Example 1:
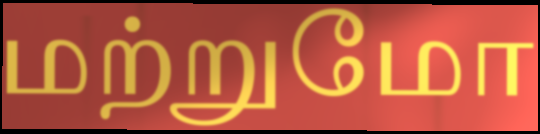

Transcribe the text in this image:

மற்றுமோ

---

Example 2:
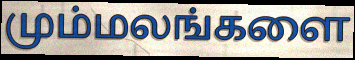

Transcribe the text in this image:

மும்மலங்களை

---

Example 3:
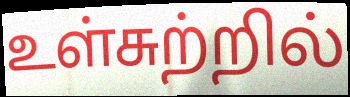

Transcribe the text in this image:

உள்சுற்றில்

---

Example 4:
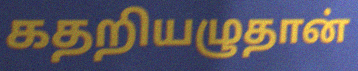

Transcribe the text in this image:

கதறியழுதான்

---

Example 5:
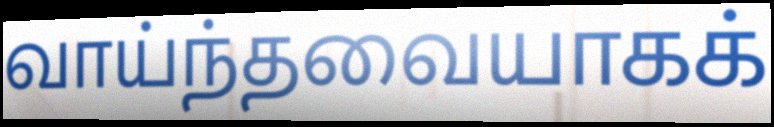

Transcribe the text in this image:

வாய்ந்தவையாகக்